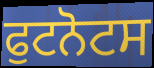
ਫੁਟਨੋਟਸ